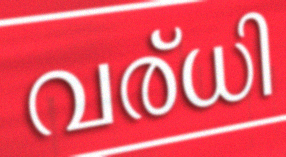
വര്ധി